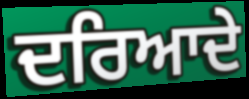
ਦਰਿਆਦੇ